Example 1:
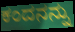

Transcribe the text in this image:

ಕಂದನನ್ನು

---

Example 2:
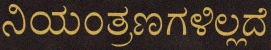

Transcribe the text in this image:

ನಿಯಂತ್ರಣಗಳಿಲ್ಲದೆ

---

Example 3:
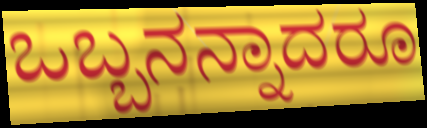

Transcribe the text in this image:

ಒಬ್ಬನನ್ನಾದರೂ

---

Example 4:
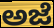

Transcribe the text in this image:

ಅಜೆ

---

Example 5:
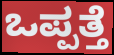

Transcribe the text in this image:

ಒಪ್ಪತ್ತೆ